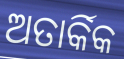
ଅତାର୍କିକ